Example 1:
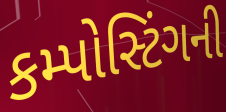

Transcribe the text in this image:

કમ્પોસ્ટિંગની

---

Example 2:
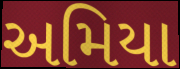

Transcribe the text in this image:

અમિયા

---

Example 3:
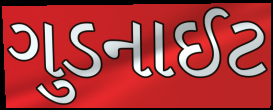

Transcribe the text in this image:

ગુડનાઈટ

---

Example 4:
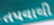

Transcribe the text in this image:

તપવાથી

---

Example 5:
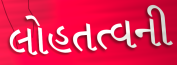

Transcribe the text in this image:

લોહતત્વની